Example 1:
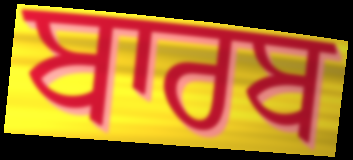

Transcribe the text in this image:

ਬਾਰਬ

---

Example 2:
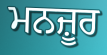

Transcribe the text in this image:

ਮਨਜ਼ੂਰ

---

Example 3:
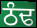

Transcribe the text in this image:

ਠੰਢ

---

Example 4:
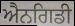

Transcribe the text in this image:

ਐਨਗਿਡੀ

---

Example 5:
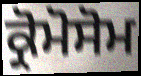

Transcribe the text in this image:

ਕ੍ਰੋਮੋਸੋਮ